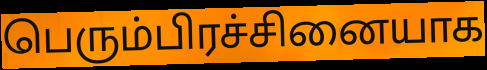
பெரும்பிரச்சினையாக